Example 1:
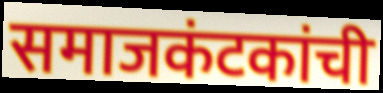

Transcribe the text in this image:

समाजकंटकांची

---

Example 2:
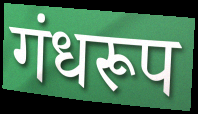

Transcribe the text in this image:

गंधरूप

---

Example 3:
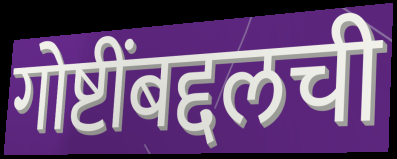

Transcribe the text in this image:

गोष्टींबद्दलची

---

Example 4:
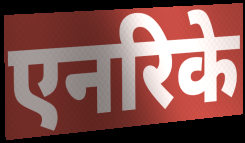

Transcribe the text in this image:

एनरिके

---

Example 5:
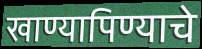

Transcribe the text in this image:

खाण्यापिण्याचे